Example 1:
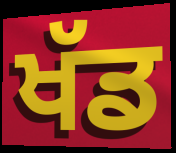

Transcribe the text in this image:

ਖੱਡ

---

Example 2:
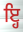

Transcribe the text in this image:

ਇ੍ਹ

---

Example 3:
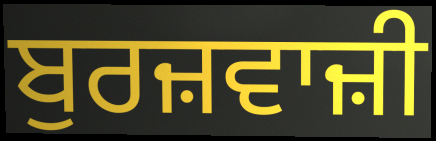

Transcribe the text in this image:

ਬੁਰਜ਼ਵਾਜ਼ੀ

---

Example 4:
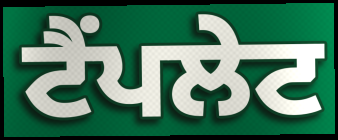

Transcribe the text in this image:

ਟੈਂਪਲੇਟ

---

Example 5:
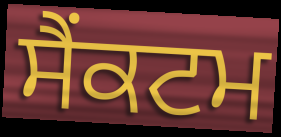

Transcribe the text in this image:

ਸੈੰਕਟਮ